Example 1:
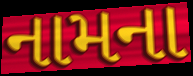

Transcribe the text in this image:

નામના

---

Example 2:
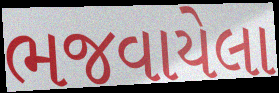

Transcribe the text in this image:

ભજવાયેલા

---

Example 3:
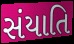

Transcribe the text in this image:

સંયાતિ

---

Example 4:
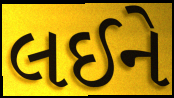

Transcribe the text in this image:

લઈને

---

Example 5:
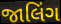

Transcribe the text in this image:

જાલિંગ